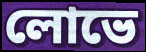
লোভে